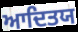
ਆਦਿਤਯ